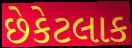
છેકેટલાક